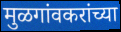
मुळगांवकरांच्या